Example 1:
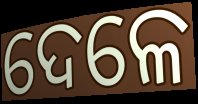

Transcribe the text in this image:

ଦେଳେ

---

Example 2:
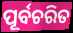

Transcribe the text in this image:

ପୂର୍ବଚରିତ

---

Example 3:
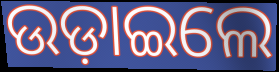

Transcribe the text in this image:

ଉଡ଼ାଇଲେ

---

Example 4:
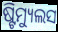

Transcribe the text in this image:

ଷ୍ଟିମ୍ୟୁଲସ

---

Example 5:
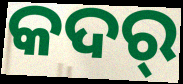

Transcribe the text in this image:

କଦର୍